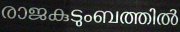
രാജകുടുംബത്തിൽ